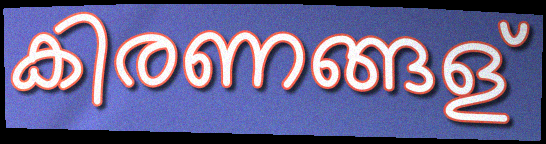
കിരണങ്ങള്